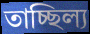
তাচ্ছিল্য